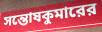
সন্তোষকুমারের